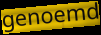
genoemd